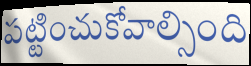
పట్టించుకోవాల్సింది